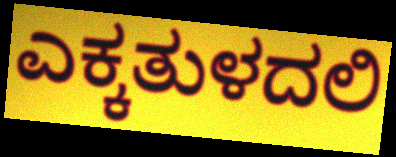
ಎಕ್ಕತುಳದಲಿ